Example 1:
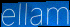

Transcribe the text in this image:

ellam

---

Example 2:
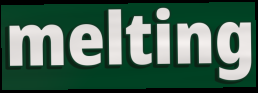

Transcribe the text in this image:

melting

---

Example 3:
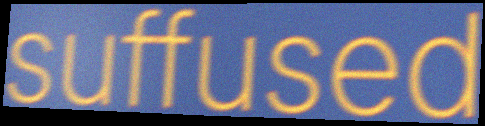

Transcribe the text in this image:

suffused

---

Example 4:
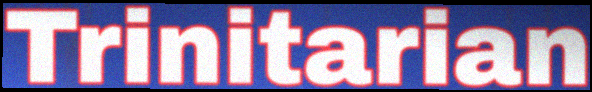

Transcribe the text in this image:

Trinitarian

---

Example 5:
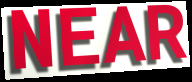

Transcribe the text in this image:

NEAR